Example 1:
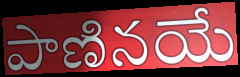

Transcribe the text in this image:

పాణినయే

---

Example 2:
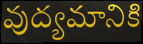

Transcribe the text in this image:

వుద్యమానికి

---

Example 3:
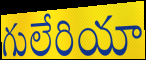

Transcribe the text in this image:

గులేరియా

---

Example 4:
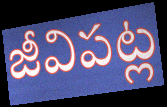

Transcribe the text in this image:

జీవిపట్ల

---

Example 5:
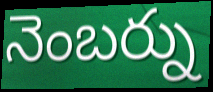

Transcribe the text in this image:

నెంబర్ను